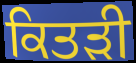
ਕਿਤੜੀ